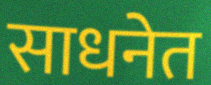
साधनेत